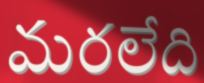
మరలేది